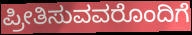
ಪ್ರೀತಿಸುವವರೊಂದಿಗೆ